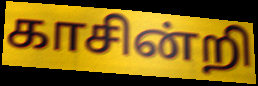
காசின்றி